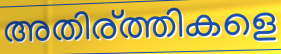
അതിര്ത്തികളെ